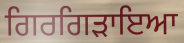
ਗਿਰਗਿੜਾਇਆ